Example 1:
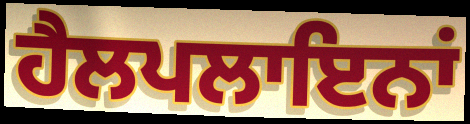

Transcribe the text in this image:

ਹੈਲਪਲਾਇਨਾਂ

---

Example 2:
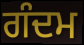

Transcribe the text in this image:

ਗੰਦਮ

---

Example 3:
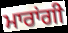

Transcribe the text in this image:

ਮਾਰਾਂਗੀ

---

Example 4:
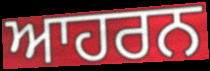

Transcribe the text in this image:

ਆਹਰਨ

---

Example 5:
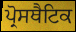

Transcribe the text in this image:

ਪ੍ਰੋਸਥੈਟਿਕ